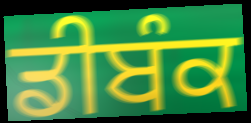
ਡੀਬੰਕ